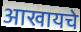
आखायचे